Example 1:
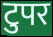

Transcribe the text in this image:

टुपर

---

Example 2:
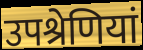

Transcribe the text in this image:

उपश्रेणियां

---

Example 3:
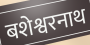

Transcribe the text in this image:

बशेश्वरनाथ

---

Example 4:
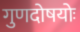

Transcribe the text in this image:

गुणदोषयोः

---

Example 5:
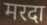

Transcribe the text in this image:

मरदा